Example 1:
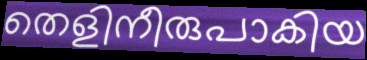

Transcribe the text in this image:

തെളിനീരുപാകിയ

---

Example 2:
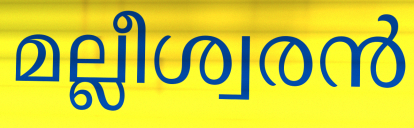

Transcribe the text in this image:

മല്ലീശ്വരൻ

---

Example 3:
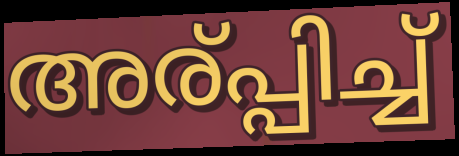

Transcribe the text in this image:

അര്പ്പിച്ച്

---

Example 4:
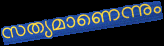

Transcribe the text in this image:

സത്യമാണെന്നും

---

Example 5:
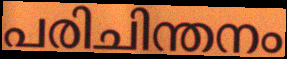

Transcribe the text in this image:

പരിചിന്തനം